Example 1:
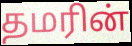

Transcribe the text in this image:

தமரின்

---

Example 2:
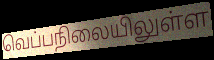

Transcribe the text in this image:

வெப்பநிலையிலுள்ள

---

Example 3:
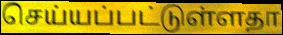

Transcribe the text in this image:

செய்யப்பட்டுள்ளதா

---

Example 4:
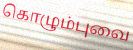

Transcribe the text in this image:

கொழும்புவை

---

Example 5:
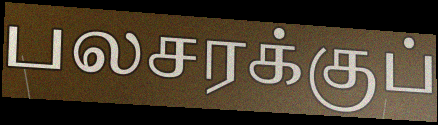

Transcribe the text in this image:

பலசரக்குப்